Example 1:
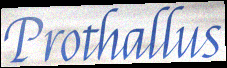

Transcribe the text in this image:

Prothallus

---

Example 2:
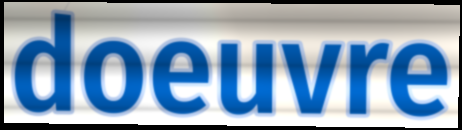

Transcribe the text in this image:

doeuvre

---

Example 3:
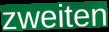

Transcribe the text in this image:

zweiten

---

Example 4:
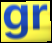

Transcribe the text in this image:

gr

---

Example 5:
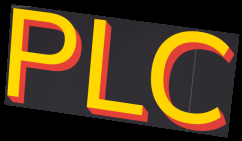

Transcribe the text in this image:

PLC